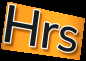
Hrs